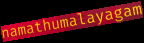
namathumalayagam